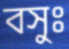
বসুঃ